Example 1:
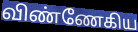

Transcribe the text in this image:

விண்ணேகிய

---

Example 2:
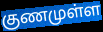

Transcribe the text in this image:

குணமுள்ள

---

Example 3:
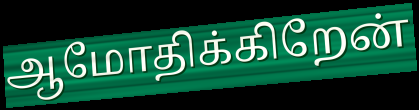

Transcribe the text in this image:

ஆமோதிக்கிறேன்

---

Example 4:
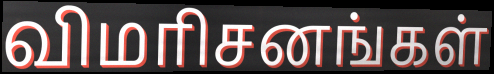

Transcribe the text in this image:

விமரிசனங்கள்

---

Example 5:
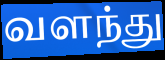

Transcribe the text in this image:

வளந்து